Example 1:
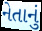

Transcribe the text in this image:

નેતાનું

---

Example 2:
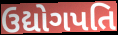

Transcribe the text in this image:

ઉદ્યોગપતિ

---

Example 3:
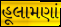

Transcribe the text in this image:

હૂલામણાં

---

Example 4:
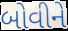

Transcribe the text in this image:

બોવીને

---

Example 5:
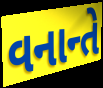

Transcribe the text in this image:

વનાન્તે